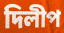
দিলীপ